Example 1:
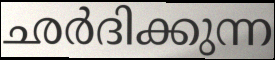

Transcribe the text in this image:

ഛർദിക്കുന്ന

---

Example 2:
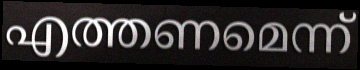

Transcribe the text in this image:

എത്തണമെന്ന്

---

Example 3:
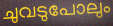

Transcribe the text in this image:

ചുവടുപോലും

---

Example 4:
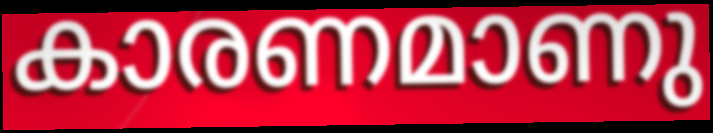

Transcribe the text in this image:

കാരണമാണു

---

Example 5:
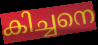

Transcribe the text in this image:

കിച്ചനെ